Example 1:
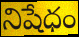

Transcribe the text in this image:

నిషేధం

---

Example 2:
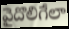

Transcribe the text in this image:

వైదొలిగేలా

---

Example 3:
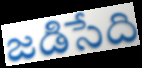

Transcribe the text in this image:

జడిసేది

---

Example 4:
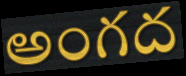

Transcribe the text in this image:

అంగద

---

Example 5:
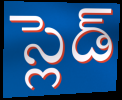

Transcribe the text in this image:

స్లెడ్